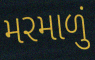
મરમાળું